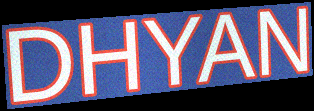
DHYAN